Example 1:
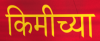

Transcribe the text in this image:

किमीच्या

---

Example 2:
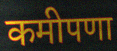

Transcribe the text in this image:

कमीपणा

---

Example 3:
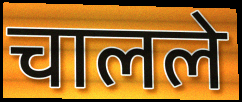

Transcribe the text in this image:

चालले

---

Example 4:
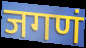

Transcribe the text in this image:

जगणं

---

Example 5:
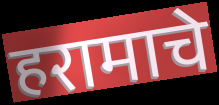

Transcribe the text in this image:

हरामाचे